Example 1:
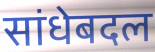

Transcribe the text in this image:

सांधेबदल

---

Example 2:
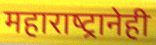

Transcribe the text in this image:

महाराष्ट्रानेही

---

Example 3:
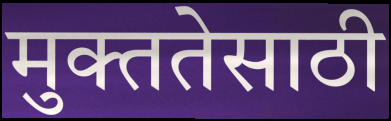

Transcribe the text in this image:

मुक्ततेसाठी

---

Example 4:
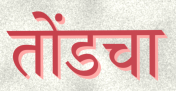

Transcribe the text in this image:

तोंडचा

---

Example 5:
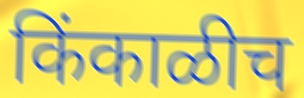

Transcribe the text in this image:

किंकाळीच